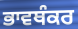
ਭਾਵਥੰਕਰ